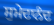
ਸੁਮੇਦਾਨੰਦ